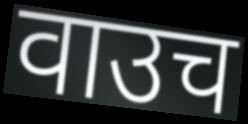
वाउच